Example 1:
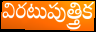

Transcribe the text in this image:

విరటుపుత్త్రిక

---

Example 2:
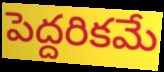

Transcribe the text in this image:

పెద్దరికమే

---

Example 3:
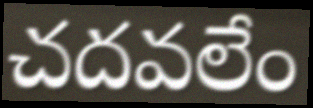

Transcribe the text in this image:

చదవలేం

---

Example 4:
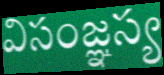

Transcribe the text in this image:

విసంజ్ఞస్య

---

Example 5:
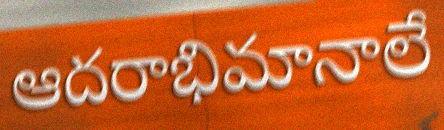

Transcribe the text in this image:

ఆదరాభిమానాలే